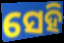
ସେହି